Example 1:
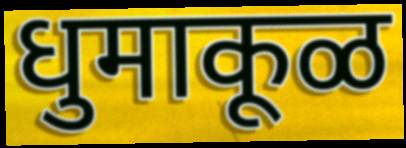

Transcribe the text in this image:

धुमाकूळ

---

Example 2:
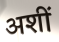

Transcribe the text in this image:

अशीं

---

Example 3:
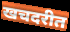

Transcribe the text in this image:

खचदरीत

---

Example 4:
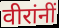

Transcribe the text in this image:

वीरांनीं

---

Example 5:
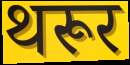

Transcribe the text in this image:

थरूर